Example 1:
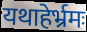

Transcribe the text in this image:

यथाहेर्भ्रमः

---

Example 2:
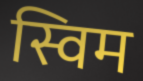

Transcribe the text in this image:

स्विम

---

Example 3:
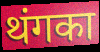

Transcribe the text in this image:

थंगका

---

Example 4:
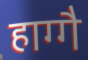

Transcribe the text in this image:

हाग्गै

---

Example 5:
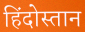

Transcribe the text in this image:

हिंदोस्तान